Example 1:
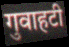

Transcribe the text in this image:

गुवाहटी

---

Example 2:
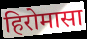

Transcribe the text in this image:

हिरोमासा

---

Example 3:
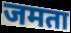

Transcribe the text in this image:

जमता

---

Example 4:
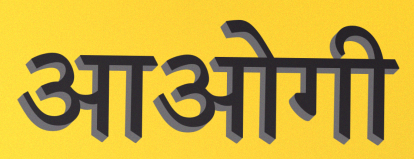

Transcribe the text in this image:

आओगी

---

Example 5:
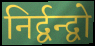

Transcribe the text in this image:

निर्द्वन्द्वो